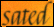
sated